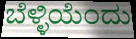
ಬೆಳ್ಳಿಯೆಂದು